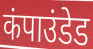
कंपाउंडेड